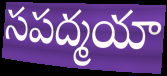
సపద్మయా